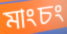
মাংচং